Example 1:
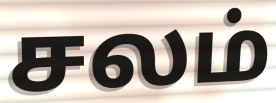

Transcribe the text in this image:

சலம்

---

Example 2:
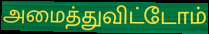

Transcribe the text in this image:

அமைத்துவிட்டோம்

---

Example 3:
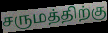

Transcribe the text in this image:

சருமத்திற்கு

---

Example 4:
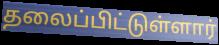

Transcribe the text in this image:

தலைப்பிட்டுள்ளார்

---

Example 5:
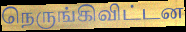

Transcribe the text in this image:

நெருங்கிவிட்டன